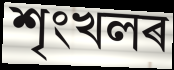
শৃংখলৰ